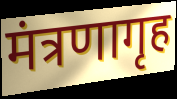
मंत्रणागृह